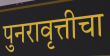
पुनरावृत्तीचा